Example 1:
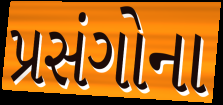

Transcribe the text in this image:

પ્રસંગોના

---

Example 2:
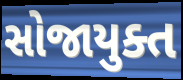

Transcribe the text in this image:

સોજાયુક્ત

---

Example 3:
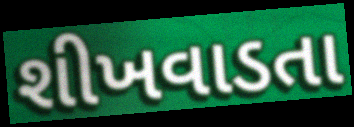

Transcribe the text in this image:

શીખવાડતા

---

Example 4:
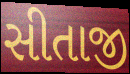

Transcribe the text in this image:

સીતાજી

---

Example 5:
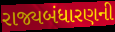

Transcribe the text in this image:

રાજ્યબંધારણની